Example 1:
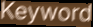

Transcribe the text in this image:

Keyword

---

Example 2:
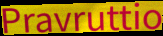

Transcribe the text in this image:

Pravruttio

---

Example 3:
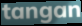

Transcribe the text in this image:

tangan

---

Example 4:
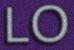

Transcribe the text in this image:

LO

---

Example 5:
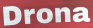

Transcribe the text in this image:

Drona